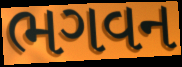
ભગવન